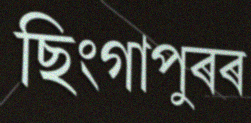
ছিংগাপুৰৰ